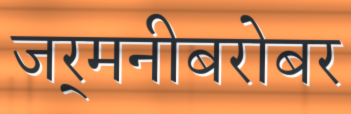
जर्मनीबरोबर